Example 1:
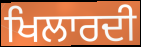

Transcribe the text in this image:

ਖਿਲਾਰਦੀ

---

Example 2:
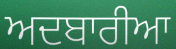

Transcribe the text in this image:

ਅਦਬਾਰੀਆ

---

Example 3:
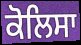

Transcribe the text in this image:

ਕੋਲਿਸਾ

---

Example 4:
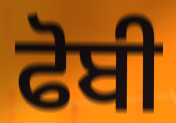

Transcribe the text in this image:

ਫੋਬੀ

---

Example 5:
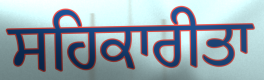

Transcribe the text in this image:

ਸਹਿਕਾਰੀਤਾ